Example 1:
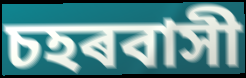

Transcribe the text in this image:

চহৰবাসী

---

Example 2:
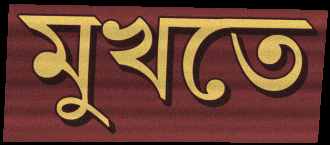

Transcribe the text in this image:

মুখতে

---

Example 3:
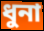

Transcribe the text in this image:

ধুনা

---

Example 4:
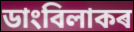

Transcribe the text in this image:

ডাংবিলাকৰ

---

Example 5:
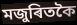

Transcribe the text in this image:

মজুৰিতকৈ